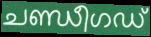
ചണ്ഡീഗഡ്